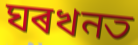
ঘৰখনত